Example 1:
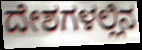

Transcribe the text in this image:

ದೇಶಗಳಲ್ಲಿನ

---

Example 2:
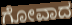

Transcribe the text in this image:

ಗೋವಾದ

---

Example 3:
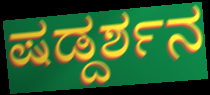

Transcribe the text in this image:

ಷಡ್ದರ್ಶನ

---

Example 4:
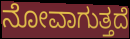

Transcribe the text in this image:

ನೋವಾಗುತ್ತದೆ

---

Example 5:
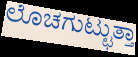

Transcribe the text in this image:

ಲೊಚಗುಟ್ಟುತ್ತಾ